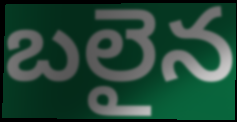
బలైన